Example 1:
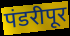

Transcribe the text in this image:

पंडरीपूर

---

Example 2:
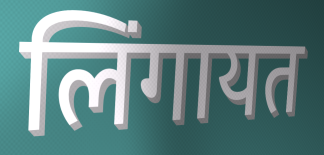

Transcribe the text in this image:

लिंगायत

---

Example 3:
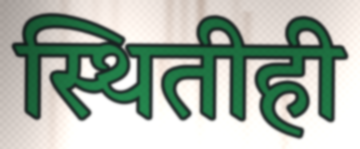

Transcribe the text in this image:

स्थितीही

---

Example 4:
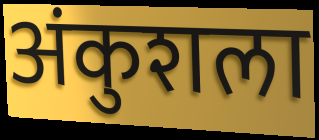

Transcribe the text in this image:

अंकुशला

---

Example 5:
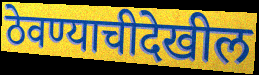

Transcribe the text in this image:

ठेवण्याचीदेखील